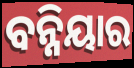
ବନ୍ନିୟାର